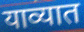
याव्यात